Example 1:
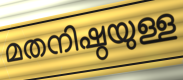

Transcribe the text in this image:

മതനിഷ്ഠയുള്ള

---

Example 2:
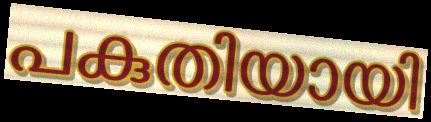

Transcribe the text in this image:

പകുതിയായി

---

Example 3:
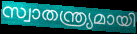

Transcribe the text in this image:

സ്വാതന്ത്ര്യമായി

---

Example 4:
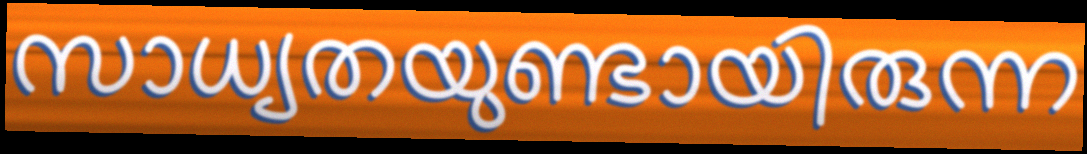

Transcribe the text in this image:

സാധ്യതയുണ്ടായിരുന്ന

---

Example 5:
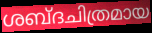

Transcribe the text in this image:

ശബ്ദചിത്രമായ